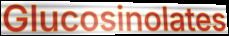
Glucosinolates